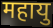
महायु